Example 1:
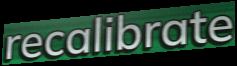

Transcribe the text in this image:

recalibrate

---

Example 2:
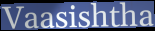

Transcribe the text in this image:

Vaasishtha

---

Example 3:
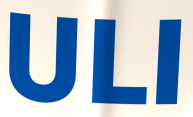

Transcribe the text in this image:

ULI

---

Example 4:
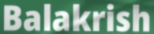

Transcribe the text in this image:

Balakrish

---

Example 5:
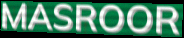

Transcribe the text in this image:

MASROOR